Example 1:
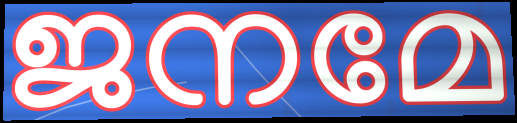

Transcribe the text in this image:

ജനമേ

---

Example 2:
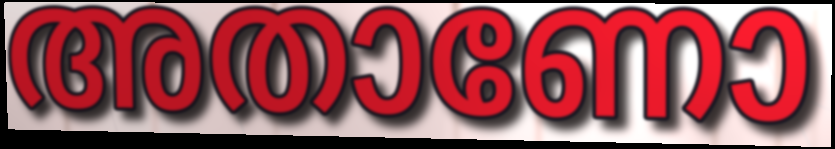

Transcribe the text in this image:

അതാണോ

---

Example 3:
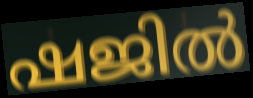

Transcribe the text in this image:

ഷജിൽ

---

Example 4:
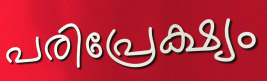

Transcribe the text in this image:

പരിപ്രേക്ഷ്യം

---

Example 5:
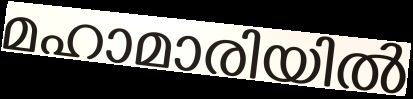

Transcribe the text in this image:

മഹാമാരിയിൽ